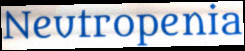
Neutropenia